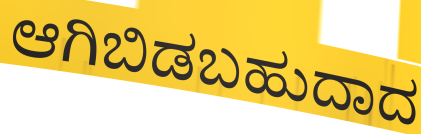
ಆಗಿಬಿಡಬಹುದಾದ